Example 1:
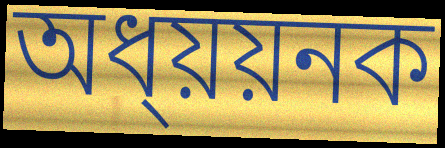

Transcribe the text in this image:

অধ্য়য়নক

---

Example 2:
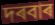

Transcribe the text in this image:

দৰবাৰ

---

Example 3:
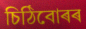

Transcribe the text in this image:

চিঠিবোৰৰ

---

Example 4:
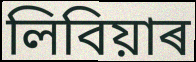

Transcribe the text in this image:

লিবিয়াৰ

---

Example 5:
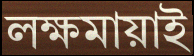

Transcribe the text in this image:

লক্ষমায়াই